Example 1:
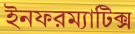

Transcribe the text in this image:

ইনফরম্যাটিক্স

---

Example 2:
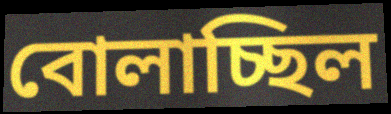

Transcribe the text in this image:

বোলাচ্ছিল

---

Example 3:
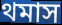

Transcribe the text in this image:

থমাস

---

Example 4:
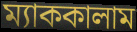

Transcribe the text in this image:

ম্যাককালাম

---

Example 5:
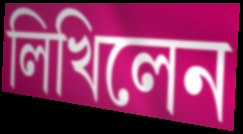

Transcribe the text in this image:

লিখিলেন